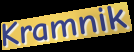
Kramnik